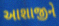
આશાજીને